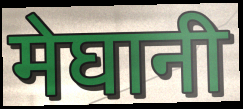
मेघानी